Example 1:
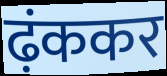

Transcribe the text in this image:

ढ़ंककर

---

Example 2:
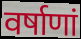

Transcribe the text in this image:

वर्षाणां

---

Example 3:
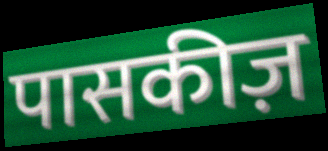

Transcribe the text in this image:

पासकीज़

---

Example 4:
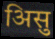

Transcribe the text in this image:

अिसु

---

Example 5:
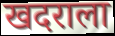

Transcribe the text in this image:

खदराला